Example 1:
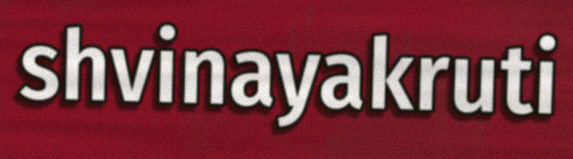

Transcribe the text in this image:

shvinayakruti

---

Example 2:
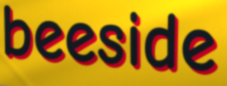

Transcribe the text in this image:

beeside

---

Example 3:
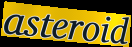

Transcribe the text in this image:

asteroid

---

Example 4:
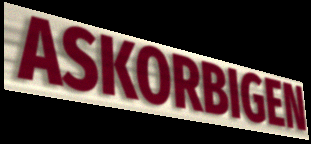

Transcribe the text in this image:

ASKORBIGEN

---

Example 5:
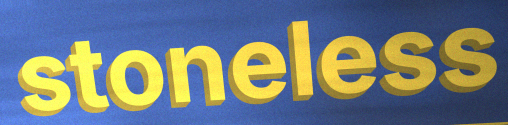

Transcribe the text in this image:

stoneless